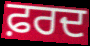
ਫ਼ਰਦ